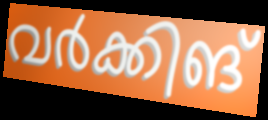
വർക്കിങ്